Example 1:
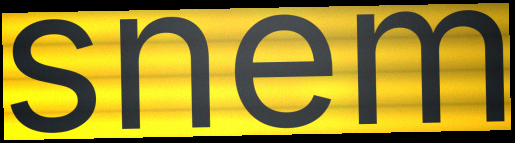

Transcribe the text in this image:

snem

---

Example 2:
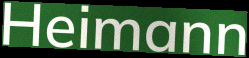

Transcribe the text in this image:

Heimann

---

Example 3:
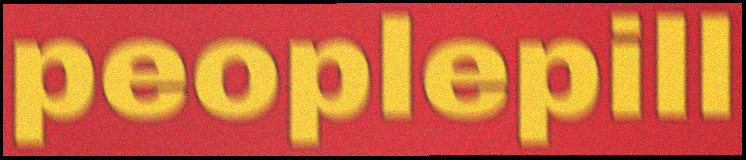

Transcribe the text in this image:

peoplepill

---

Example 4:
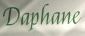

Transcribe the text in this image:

Daphane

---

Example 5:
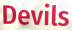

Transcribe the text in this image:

Devils